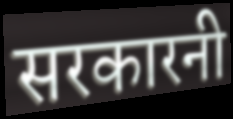
सरकारनी